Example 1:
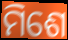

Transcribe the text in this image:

ମିଶେ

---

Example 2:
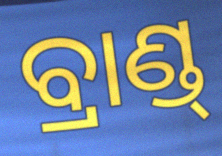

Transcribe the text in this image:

ବ୍ରାଣ୍ଡ୍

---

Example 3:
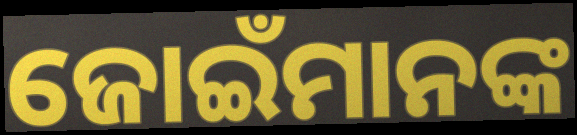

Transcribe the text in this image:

ଜୋଇଁମାନଙ୍କ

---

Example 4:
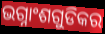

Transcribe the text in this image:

ଭଗ୍ନାଂଶଗୁଡିକର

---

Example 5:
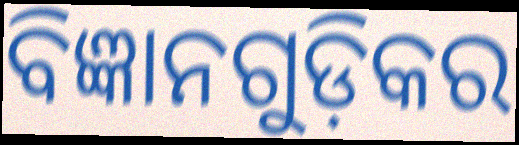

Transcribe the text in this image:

ବିଜ୍ଞାନଗୁଡ଼ିକର